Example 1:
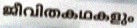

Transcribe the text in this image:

ജീവിതകഥകളും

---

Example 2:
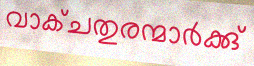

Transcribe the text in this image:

വാക്ചതുരന്മാർക്കു്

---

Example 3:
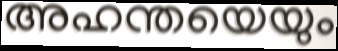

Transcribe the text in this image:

അഹന്തയെയും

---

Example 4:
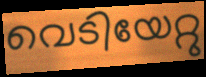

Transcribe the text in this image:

വെടിയേറ്റു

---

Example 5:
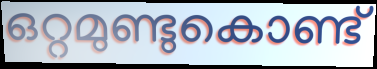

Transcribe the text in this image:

ഒറ്റമുണ്ടുകൊണ്ട്